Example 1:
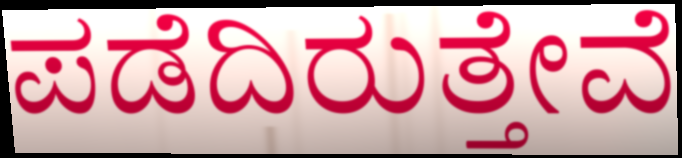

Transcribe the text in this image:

ಪಡೆದಿರುತ್ತೇವೆ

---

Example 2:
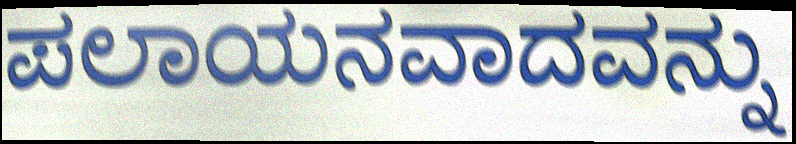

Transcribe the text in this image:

ಪಲಾಯನವಾದವನ್ನು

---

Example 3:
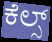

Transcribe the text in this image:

ಕೆಲ್ಸ್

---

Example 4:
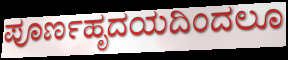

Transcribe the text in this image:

ಪೂರ್ಣಹೃದಯದಿಂದಲೂ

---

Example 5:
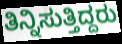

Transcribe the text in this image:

ತಿನ್ನಿಸುತ್ತಿದ್ದರು